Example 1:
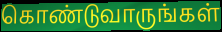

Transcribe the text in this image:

கொண்டுவாருங்கள்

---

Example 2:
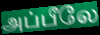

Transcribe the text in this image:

அப்பீலே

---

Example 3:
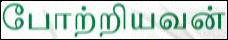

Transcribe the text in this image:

போற்றியவன்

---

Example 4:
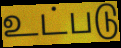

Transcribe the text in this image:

உட்படு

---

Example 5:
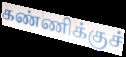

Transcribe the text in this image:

கண்ணிக்குச்